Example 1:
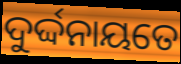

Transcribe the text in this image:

ଦୁର୍ଦ୍ଦନାୟତେ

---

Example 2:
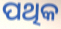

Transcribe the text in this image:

ପଥିକ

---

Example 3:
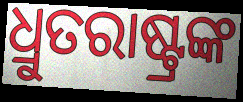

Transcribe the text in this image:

ଧ୍ରୁତରାଷ୍ଟ୍ରଙ୍କ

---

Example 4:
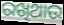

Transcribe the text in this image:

ରଖିଥାଉ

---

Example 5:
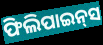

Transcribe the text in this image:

ଫିଲିପାଇନ୍‍ସ